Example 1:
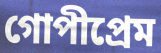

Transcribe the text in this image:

গোপীপ্রেম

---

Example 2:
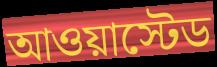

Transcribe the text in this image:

আওয়াস্টেড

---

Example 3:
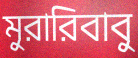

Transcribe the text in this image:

মুরারিবাবু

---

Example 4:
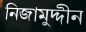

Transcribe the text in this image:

নিজামুদ্দীন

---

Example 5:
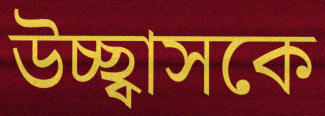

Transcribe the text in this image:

উচ্ছ্বাসকে